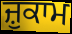
ਜ਼ੁਕਾਮ